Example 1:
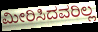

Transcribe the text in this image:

ಮೀರಿಸಿದವರಿಲ್ಲ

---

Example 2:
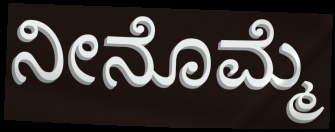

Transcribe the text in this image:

ನೀನೊಮ್ಮೆ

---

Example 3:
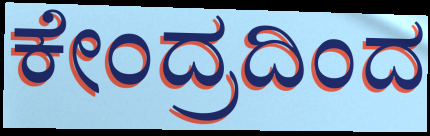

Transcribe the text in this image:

ಕೇಂದ್ರದಿಂದ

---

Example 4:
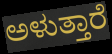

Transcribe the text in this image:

ಅಳುತ್ತಾರೆ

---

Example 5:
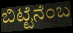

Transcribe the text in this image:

ಬಿಟ್ಟೆನೆಂಬ